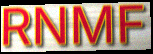
RNMF